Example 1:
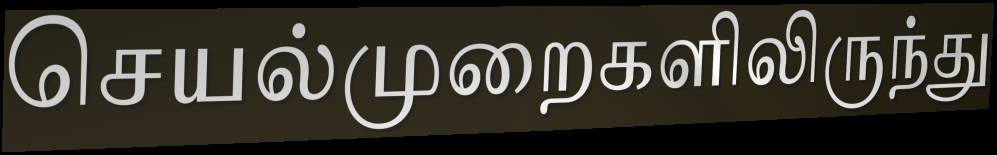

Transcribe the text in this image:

செயல்முறைகளிலிருந்து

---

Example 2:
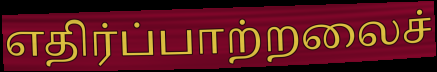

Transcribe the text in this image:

எதிர்ப்பாற்றலைச்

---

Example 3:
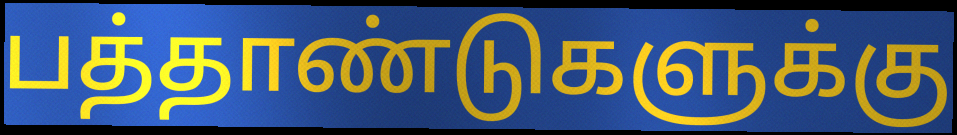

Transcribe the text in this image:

பத்தாண்டுகளுக்கு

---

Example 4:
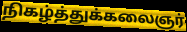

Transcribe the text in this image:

நிகழ்த்துக்கலைஞர்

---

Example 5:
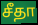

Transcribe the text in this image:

சீதா